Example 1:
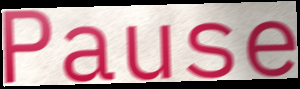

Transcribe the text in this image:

Pause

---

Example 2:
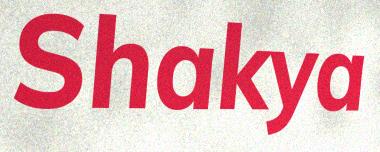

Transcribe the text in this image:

Shakya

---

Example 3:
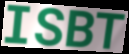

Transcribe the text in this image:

ISBT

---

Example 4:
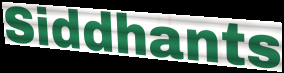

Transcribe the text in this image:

Siddhants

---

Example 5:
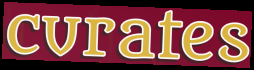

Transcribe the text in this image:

curates